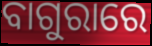
ବାଗୁରାରେ